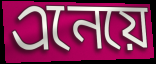
এনেয়ে